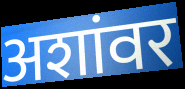
अशांवर